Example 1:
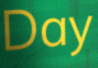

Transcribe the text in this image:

Day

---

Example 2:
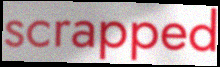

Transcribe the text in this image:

scrapped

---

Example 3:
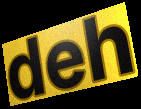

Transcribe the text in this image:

deh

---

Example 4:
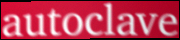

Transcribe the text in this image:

autoclave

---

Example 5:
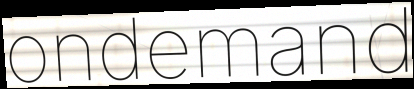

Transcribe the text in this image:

ondemand